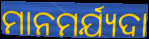
ମାନମର୍ଯ୍ୟଦା